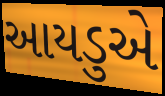
આયડુએ